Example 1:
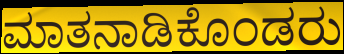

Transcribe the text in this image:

ಮಾತನಾಡಿಕೊಂಡರು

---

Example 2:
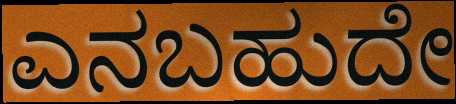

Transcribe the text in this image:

ಎನಬಹುದೇ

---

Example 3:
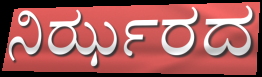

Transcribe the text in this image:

ನಿರ್ಝರದ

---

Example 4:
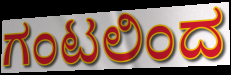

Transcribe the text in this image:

ಗಂಟಲಿಂದ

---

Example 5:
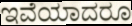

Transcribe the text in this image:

ಇವೆಯಾದರೂ